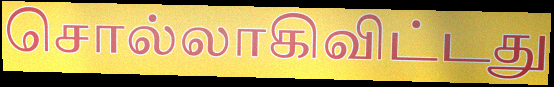
சொல்லாகிவிட்டது